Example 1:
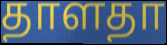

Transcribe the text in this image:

தாளதா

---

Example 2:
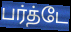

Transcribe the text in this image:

பர்த்டே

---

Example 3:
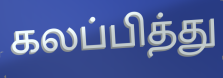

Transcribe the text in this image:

கலப்பித்து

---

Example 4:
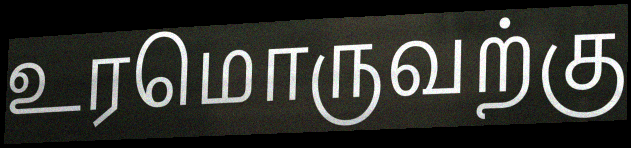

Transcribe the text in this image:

உரமொருவற்கு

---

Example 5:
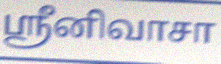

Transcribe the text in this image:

ஸ்ரீனிவாசா